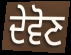
ਦੇਵੋਣ